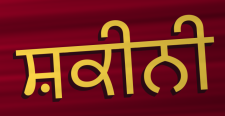
ਸ਼ਕੀਨੀ